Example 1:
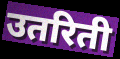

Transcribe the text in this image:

उतरिती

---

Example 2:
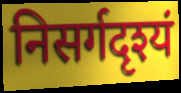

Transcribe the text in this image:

निसर्गदृश्यं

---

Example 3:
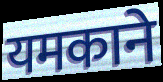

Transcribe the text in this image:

यमकाने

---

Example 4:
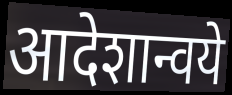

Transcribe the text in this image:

आदेशान्वये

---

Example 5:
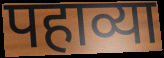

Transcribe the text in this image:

पहाव्या